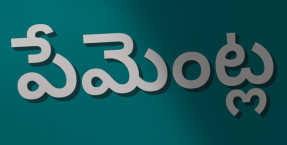
పేమెంట్ల